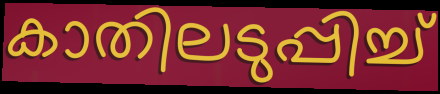
കാതിലടുപ്പിച്ച്